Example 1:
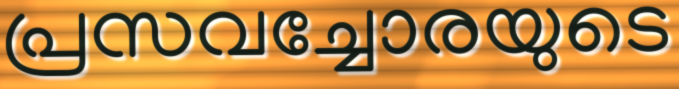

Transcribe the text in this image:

പ്രസവച്ചോരയുടെ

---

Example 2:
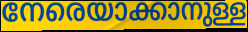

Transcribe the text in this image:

നേരെയാക്കാനുള്ള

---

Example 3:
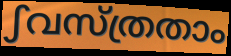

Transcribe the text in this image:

ഽവസ്ത്രതാം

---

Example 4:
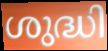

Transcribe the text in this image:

ശുദ്ധി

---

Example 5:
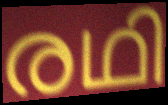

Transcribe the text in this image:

രഥി